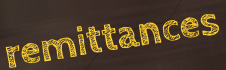
remittances